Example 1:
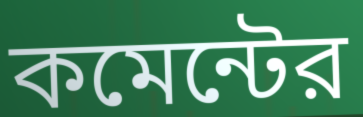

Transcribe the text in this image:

কমেন্টের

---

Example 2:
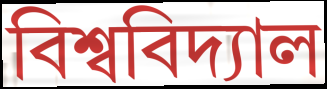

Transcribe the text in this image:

বিশ্ববিদ্যাল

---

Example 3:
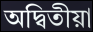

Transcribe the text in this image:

অদ্বিতীয়া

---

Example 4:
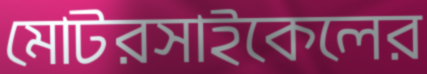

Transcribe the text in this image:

মোটরসাইকেলের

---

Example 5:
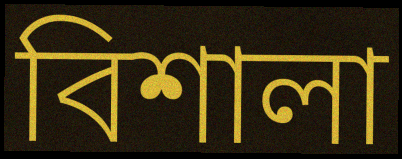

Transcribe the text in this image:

বিশালা